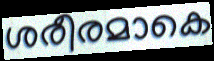
ശരീരമാകെ